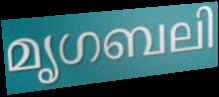
മൃഗബലി